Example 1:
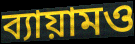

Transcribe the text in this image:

ব্যায়ামও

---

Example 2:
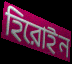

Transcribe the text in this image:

হিরোইন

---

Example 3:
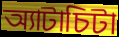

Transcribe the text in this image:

অ্যাটাচিটা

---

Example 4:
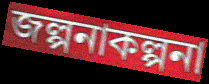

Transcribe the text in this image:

জল্পনাকল্পনা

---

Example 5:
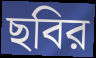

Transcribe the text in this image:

ছবির